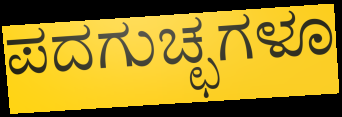
ಪದಗುಚ್ಛಗಳೂ